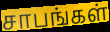
சாபங்கள்